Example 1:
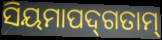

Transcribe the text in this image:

ସିୟମାପଦ୍‌ଗତାମ୍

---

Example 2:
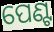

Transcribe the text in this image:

ପେଣ୍ଟ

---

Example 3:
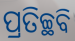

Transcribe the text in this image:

ପ୍ରତିଚ୍ଛବି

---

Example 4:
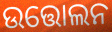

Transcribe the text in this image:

ଉତ୍ତୋଲନ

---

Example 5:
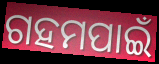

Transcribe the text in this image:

ଗହମପାଇଁ